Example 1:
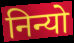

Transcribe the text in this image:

निन्यो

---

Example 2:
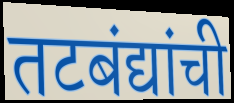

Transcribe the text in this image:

तटबंद्यांची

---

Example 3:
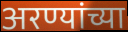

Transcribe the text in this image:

अरण्यांच्या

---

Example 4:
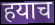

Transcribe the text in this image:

हयाच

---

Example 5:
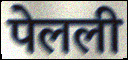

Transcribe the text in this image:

पेलली